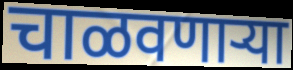
चाळवणाऱ्या